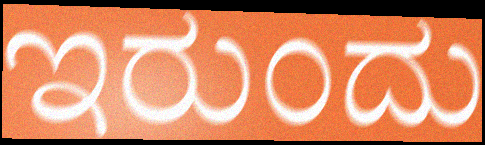
ಇರುಂದು